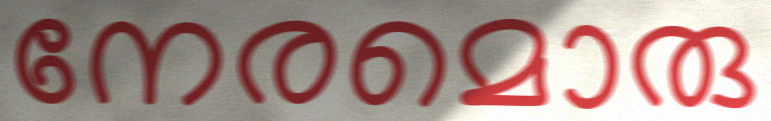
നേരമൊരു